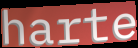
harte